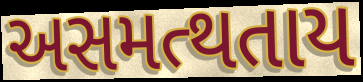
અસમત્થતાય